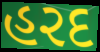
હરદ